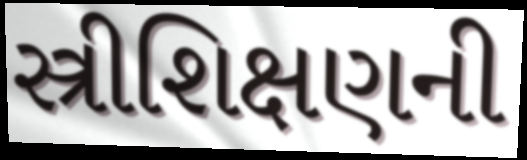
સ્ત્રીશિક્ષણની